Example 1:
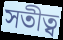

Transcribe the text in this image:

সতীত্ব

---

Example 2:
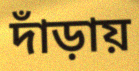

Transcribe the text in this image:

দাঁড়ায়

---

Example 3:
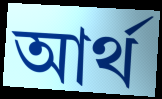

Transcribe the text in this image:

আৰ্থ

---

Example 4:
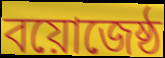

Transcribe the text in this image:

বয়োজেষ্ঠ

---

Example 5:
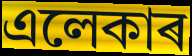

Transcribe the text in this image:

এলেকাৰ